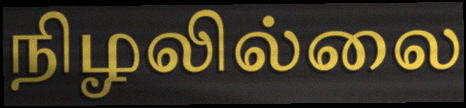
நிழலில்லை